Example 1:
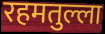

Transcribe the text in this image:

रहमतुल्ला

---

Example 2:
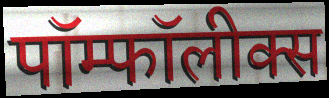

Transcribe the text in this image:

पॉम्फॉलीक्स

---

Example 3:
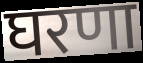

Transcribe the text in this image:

घरणा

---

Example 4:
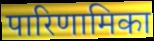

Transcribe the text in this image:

पारिणामिका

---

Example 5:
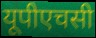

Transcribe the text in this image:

यूपीएचसी